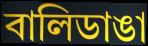
বালিডাঙা